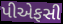
પીએફસી